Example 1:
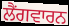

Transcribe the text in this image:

ਲੈਂਗਵਾਰਨ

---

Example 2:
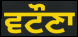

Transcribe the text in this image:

ਵਟੌਣਾ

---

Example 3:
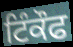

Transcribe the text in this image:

ਟਿੰਕੌਫ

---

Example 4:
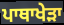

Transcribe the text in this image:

ਪਾਥਾਖੇੜਾ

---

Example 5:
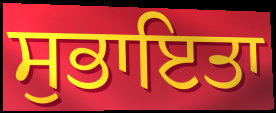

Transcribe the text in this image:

ਸੁਭਾਇਤਾ